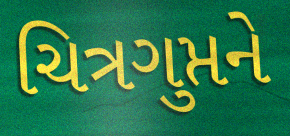
ચિત્રગુપ્તને